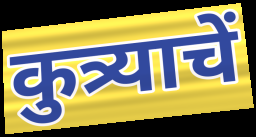
कुत्र्याचें